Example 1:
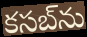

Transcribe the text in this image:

కసబ్‌ను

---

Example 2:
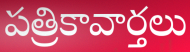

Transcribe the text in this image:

పత్రికావార్తలు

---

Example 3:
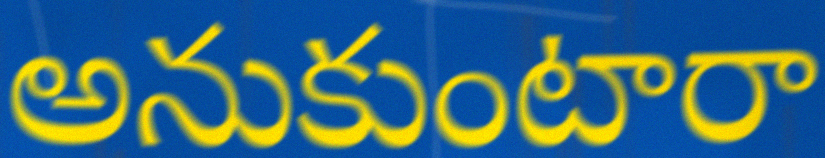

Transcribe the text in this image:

అనుకుంటారా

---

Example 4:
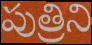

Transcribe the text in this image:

పుత్రిని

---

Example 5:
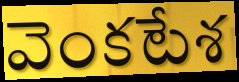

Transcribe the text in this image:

వెంకటేశ